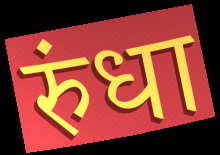
रुंधा